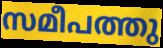
സമീപത്തു